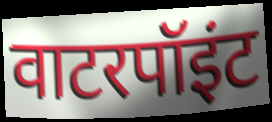
वाटरपॉइंट